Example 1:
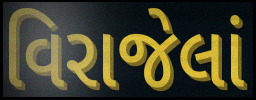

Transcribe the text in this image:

વિરાજેલાં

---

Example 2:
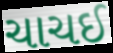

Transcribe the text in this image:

ચાચઈ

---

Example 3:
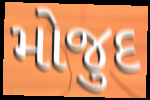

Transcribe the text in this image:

મોજુદ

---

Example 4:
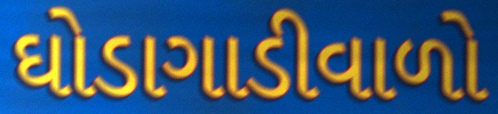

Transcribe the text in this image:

ઘોડાગાડીવાળો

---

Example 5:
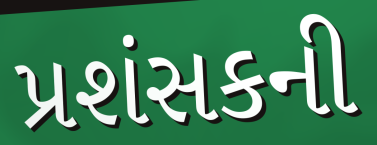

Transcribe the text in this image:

પ્રશંસકની